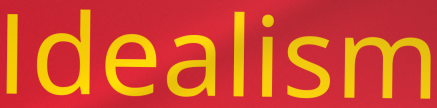
Idealism